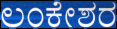
ಲಂಕೇಶರ